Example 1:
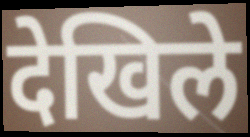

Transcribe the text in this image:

देखिले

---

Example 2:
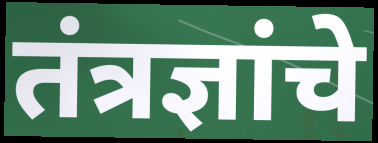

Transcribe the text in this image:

तंत्रज्ञांचे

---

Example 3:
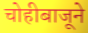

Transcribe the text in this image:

चोहीबाजूने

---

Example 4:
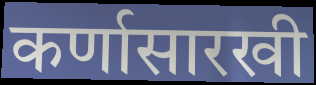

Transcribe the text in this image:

कर्णासारखी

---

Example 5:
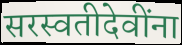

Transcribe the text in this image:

सरस्वतीदेवींना